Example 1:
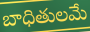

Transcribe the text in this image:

బాధితులమే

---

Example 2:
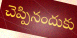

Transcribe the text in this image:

చెప్పినందుకు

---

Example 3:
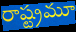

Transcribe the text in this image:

రాష్ట్రమూ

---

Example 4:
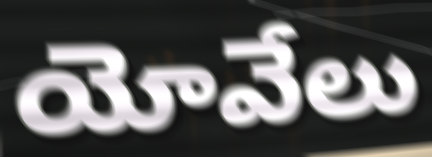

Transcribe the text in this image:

యోవేలు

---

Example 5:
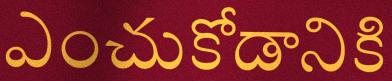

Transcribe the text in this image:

ఎంచుకోడానికి